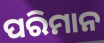
ପରିମାନ